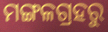
ମଙ୍ଗଳଗ୍ରହରୁ